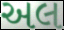
અલ